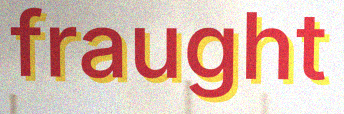
fraught